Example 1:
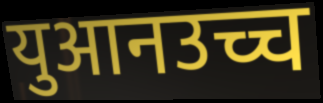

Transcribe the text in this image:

युआनउच्च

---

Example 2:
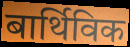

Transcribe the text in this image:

बार्थिविक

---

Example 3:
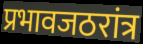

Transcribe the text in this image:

प्रभावजठरांत्र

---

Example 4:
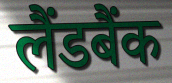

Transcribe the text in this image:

लैंडबैंक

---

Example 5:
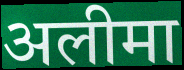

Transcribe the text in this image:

अलीमा